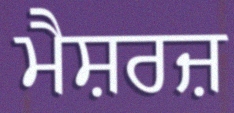
ਮੈਸ਼ਰਜ਼